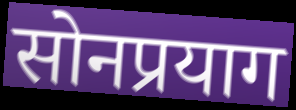
सोनप्रयाग